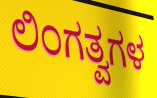
ಲಿಂಗತ್ವಗಳ